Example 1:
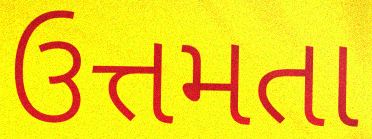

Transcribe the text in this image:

ઉત્તમતા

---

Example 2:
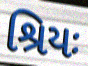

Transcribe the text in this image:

શ્રિયઃ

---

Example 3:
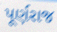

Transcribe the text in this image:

પૂર્ણરાજ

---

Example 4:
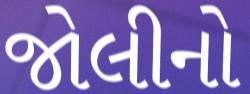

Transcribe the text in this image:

જોલીનો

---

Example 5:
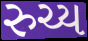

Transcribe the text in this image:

રુચ્ય